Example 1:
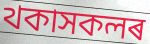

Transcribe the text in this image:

থকাসকলৰ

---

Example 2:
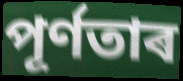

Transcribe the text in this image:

পূৰ্ণতাৰ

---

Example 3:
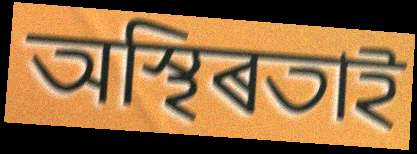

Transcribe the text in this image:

অস্থিৰতাই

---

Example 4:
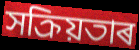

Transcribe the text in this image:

সক্ৰিয়তাৰ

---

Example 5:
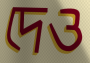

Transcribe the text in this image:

দেও